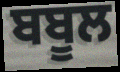
ਬਬੂਲ